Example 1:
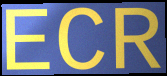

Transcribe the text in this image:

ECR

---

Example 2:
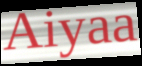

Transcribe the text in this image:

Aiyaa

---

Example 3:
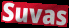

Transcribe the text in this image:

Suvas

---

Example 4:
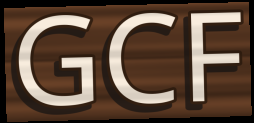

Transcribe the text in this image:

GCF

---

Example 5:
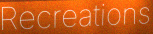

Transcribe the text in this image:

Recreations